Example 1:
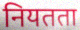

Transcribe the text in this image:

नियतता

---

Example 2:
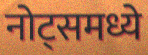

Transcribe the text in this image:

नोट्समध्ये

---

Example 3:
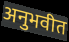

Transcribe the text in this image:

अनुभवीत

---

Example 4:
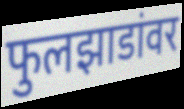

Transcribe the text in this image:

फुलझाडांवर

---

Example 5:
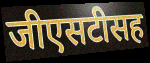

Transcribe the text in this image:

जीएसटीसह